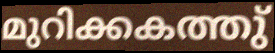
മുറിക്കകത്തു്